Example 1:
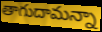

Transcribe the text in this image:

తాగుదామన్నా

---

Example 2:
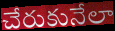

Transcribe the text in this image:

చేరుకునేలా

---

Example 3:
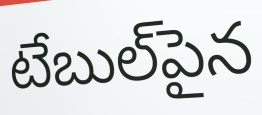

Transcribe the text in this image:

టేబుల్‌పైన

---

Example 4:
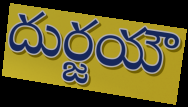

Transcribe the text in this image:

దుర్జయౌ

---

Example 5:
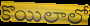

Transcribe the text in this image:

కొయిలాలో